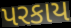
પરકાય